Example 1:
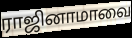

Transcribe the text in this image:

ராஜினாமாவை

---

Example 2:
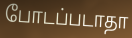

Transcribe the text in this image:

போடப்படாதா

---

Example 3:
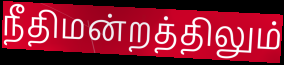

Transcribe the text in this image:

நீதிமன்றத்திலும்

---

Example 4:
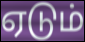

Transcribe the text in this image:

ஏடும்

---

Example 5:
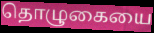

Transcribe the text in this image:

தொழுகையை